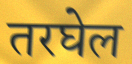
तरघेल